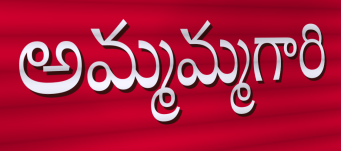
అమ్మమ్మగారి